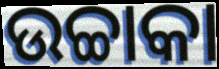
ଉଚ୍ଚାକା